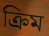
ক্রিম